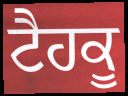
ਟੈਹਕੂ